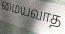
மையவாத